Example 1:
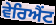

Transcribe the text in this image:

ਵੇਰਿਐਂਟ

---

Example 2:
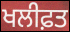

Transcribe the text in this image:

ਖਲੀਫ਼ਤ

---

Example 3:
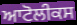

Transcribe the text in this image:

ਆਟੋਲੀਕਸ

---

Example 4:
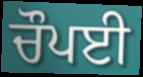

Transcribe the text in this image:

ਚੌਪਈ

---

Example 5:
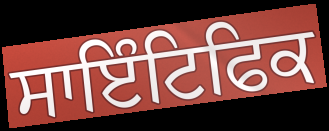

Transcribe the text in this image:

ਸਾਇੰਟਿਫਿਕ